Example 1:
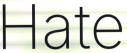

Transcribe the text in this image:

Hate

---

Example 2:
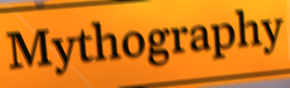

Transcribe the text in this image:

Mythography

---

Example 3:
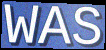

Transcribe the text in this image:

WAS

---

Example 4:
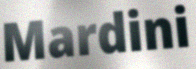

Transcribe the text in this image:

Mardini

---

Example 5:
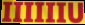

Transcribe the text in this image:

IIIIIIU